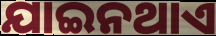
ଯାଇନଥାଏ